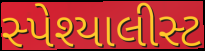
સ્પેશ્યાલીસ્ટ